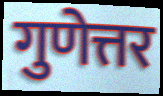
गुणेत्तर